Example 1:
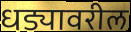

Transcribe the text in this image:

धड्यावरील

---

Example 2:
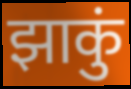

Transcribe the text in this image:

झाकुं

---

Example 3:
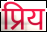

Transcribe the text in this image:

प्रिय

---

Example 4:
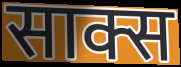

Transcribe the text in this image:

साक्स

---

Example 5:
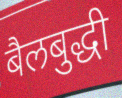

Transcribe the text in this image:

बैलबुद्धी